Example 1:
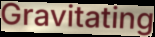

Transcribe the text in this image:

Gravitating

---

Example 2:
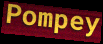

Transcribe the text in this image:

Pompey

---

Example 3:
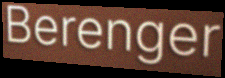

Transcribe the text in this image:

Berenger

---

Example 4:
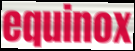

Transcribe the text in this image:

equinox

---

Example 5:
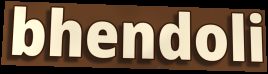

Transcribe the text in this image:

bhendoli